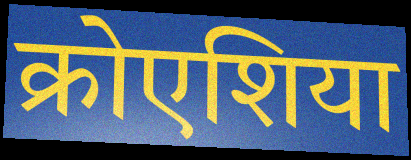
क्रोएशिया